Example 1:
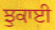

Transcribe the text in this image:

ਝੁਕਾਈ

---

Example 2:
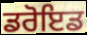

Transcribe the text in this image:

ਡਰੋਇਡ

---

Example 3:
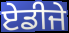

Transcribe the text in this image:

ਏਡੀਜੇ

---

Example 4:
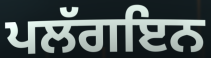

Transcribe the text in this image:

ਪਲੱਗਇਨ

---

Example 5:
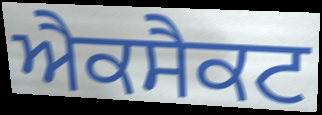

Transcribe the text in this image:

ਐਕਸੈਕਟ